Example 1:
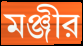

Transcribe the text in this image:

মঞ্জীর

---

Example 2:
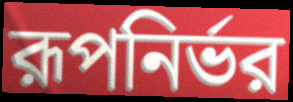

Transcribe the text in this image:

রূপনির্ভর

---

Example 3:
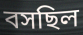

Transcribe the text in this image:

বসছিল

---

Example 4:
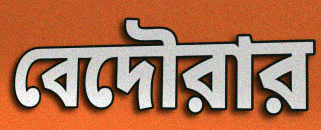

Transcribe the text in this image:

বেদৌরার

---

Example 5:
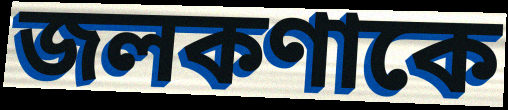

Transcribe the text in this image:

জলকণাকে